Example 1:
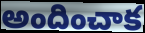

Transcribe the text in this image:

అందించాక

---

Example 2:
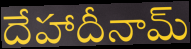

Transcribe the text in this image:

దేహాదీనామ్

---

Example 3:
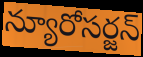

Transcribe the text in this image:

న్యూరోసర్జన్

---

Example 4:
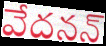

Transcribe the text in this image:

వేదనన్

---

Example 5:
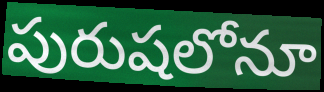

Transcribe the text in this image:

పురుషలోనూ